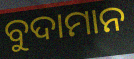
ବୁଦାମାନ